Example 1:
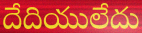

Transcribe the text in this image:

దేదియులేదు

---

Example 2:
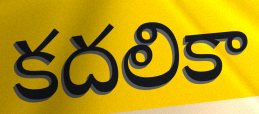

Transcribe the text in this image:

కదలికా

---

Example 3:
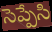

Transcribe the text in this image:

సెప్పేసి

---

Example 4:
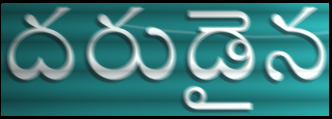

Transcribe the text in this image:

దరుడైన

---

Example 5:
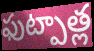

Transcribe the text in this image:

ఫుట్పాత్ల